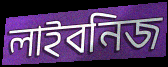
লাইবনিজ